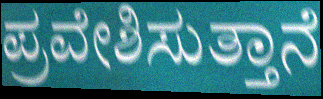
ಪ್ರವೇಶಿಸುತ್ತಾನೆ